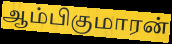
ஆம்பிகுமாரன்